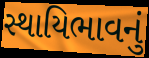
સ્થાયિભાવનું